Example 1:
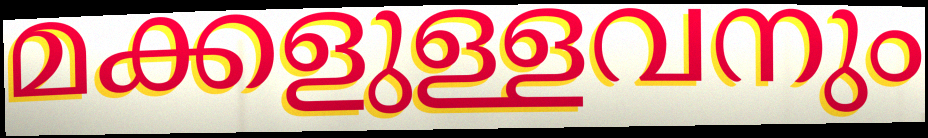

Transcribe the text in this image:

മക്കളുള്ളവനും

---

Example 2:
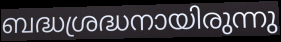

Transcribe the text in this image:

ബദ്ധശ്രദ്ധനായിരുന്നു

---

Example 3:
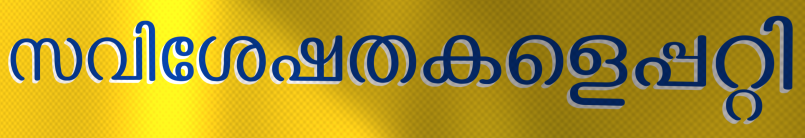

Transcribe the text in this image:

സവിശേഷതകളെപ്പറ്റി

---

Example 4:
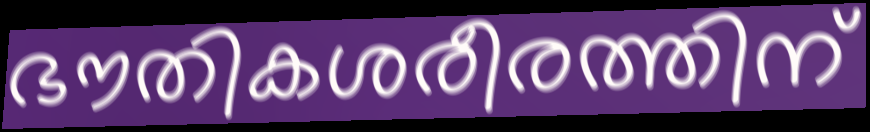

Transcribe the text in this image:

ഭൗതികശരീരത്തിന്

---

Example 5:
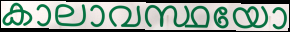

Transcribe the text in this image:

കാലാവസ്ഥയോ